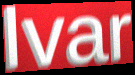
Ivar